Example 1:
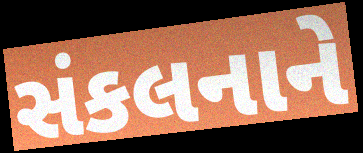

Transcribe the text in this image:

સંકલનાને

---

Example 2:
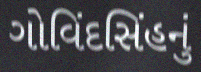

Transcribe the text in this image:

ગોવિંદસિંહનું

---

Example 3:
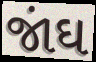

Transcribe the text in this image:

જાંઘ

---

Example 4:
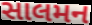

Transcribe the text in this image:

સાલમન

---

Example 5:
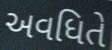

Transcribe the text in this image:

અવધિતે